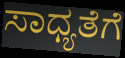
ಸಾಧ್ಯತೆಗೆ